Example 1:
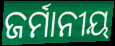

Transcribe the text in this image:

ଜର୍ମାନୀୟ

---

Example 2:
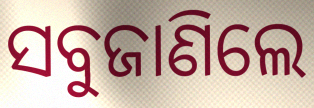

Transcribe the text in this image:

ସବୁଜାଣିଲେ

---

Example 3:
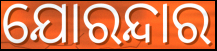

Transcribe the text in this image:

ଯୋରନ୍ଦାର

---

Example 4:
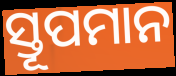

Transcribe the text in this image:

ସ୍ତୂପମାନ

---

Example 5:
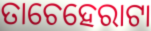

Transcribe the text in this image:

ତାଚେହେରାଟା